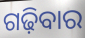
ଗଢ଼ିବାର